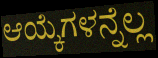
ಆಯ್ಕೆಗಳನ್ನೆಲ್ಲ